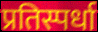
प्रतिस्पर्धा